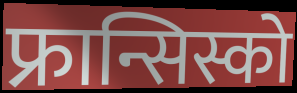
फ्रान्सिस्को